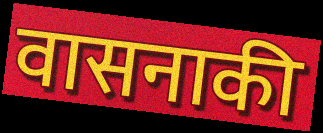
वासनाकी